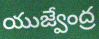
యుజ్వేంద్ర